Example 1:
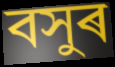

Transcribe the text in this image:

বসুৰ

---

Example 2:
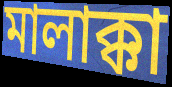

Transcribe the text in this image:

মালাক্কা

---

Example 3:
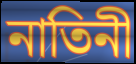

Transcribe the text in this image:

নাতিনী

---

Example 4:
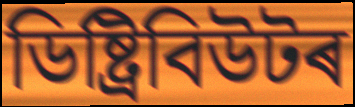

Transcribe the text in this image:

ডিষ্ট্ৰিবিউটৰ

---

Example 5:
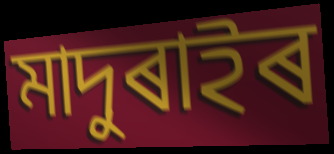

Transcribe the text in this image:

মাদুৰাইৰ